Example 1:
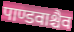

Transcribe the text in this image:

पाण्डवाश्चैव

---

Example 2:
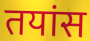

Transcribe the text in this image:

तयांस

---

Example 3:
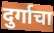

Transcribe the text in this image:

दुर्गाचा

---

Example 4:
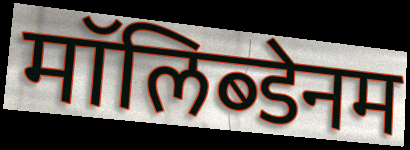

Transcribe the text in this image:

मॉलिब्डेनम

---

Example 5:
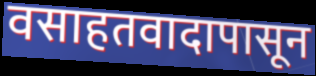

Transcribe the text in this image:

वसाहतवादापासून